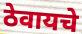
ठेवायचे